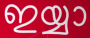
ഇയ്യാ